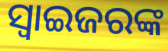
ସ୍ଵାଇଜରଙ୍କ